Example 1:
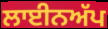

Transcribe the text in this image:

ਲਾਈਨਅੱਪ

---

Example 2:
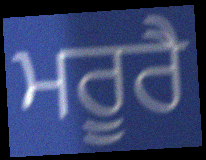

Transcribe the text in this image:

ਮਰੂਰੈ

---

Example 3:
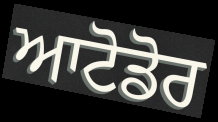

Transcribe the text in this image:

ਆਟੋਡੋਰ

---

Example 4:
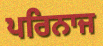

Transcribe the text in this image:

ਪਰਿਨਾਜ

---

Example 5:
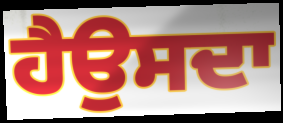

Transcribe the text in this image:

ਹੈਉਸਦਾ